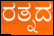
ರತ್ನದ